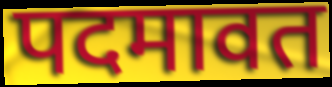
पदमावत